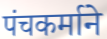
पंचकर्माने